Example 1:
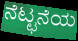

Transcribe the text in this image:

ನೆಟ್ಟನೆಯ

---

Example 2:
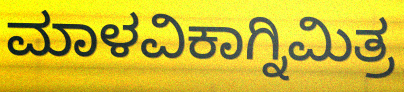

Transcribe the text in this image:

ಮಾಳವಿಕಾಗ್ನಿಮಿತ್ರ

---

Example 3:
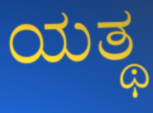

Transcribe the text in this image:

ಯತ್ಥ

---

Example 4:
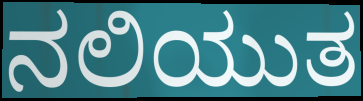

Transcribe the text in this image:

ನಲಿಯುತ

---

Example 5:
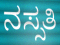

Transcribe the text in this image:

ನಸ್ಸತಿ